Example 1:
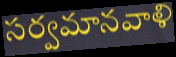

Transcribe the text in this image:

సర్వమానవాళి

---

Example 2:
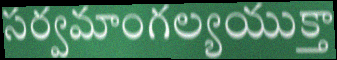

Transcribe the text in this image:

సర్వమాంగల్యయుక్తా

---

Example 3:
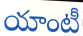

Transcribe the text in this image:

యాంటీ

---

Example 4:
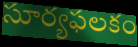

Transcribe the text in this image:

సూర్యఫలకం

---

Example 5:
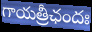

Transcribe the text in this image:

గాయత్రీఛందః